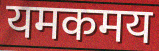
यमकमय